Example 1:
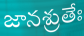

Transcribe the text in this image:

జానశ్రుతేః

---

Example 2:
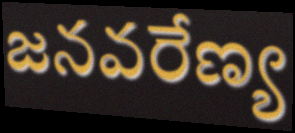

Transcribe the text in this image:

జనవరేణ్య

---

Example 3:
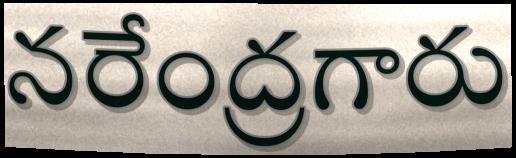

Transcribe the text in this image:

నరేంద్రగారు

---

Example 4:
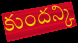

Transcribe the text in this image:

కుందన్కి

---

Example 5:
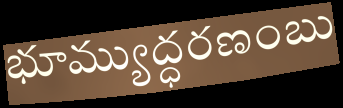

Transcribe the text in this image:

భూమ్యుద్ధరణంబు